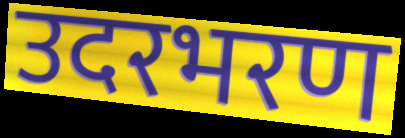
उदरभरण